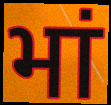
भां